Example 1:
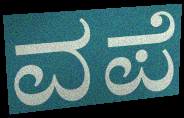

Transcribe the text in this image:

ವಪೆ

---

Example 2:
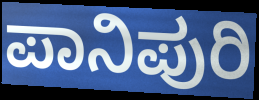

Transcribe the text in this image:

ಪಾನಿಪುರಿ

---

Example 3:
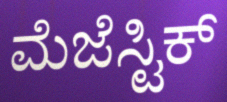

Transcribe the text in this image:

ಮೆಜೆಸ್ಟಿಕ್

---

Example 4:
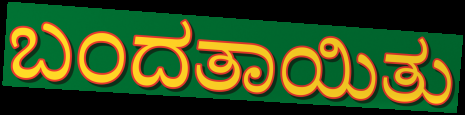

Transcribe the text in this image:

ಬಂದತಾಯಿತು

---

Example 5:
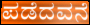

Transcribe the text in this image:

ಪಡೆದವನೆ